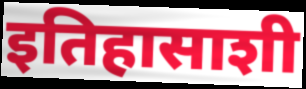
इतिहासाशी